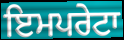
ਇਮਪਰੇਟਾ